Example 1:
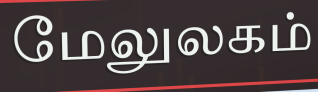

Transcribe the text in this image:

மேலுலகம்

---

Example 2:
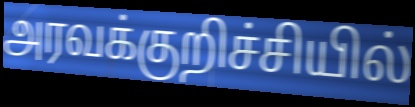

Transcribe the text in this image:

அரவக்குறிச்சியில்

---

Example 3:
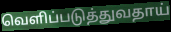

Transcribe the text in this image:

வெளிப்படுத்துவதாய்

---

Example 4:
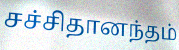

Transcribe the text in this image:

சச்சிதானந்தம்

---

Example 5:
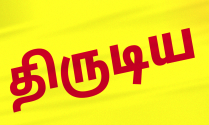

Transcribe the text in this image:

திருடிய